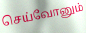
செய்வோனும்